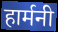
हार्मनी